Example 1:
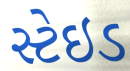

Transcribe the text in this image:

સ્ટેઇડ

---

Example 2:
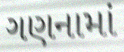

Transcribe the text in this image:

ગણનામાં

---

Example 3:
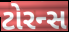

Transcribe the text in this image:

ટોરન્સ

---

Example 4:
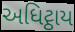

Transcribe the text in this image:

અધિટ્ઠાય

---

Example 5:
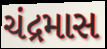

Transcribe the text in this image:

ચંદ્રમાસ